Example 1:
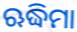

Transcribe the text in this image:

ଋଦ୍ଧିମା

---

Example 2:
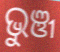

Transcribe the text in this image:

ଭୁଞ୍ଜ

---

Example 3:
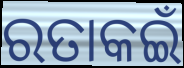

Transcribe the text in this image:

ରତାକଇଁ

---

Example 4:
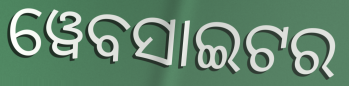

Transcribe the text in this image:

ୱେବସାଇଟର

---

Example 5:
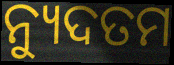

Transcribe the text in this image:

ନ୍ୟୁଦତମ